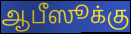
ஆபீஸூக்கு